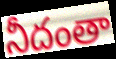
నీదంతా